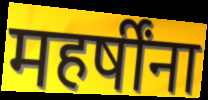
महर्षींना